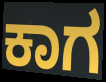
ಕಾಗ